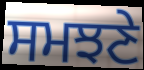
ਸਮਝਣੇ